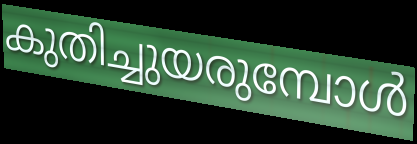
കുതിച്ചുയരുമ്പോൾ